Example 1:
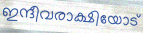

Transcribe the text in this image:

ഇന്ദീവരാക്ഷിയോട്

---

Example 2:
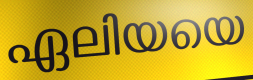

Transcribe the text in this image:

ഏലിയയെ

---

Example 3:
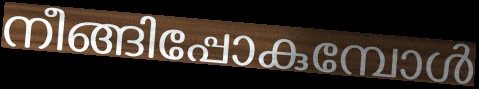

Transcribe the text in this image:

നീങ്ങിപ്പോകുമ്പോൾ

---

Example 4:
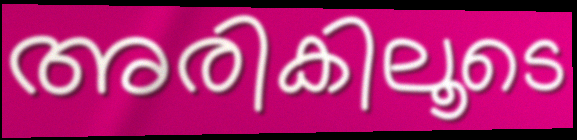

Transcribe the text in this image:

അരികിലൂടെ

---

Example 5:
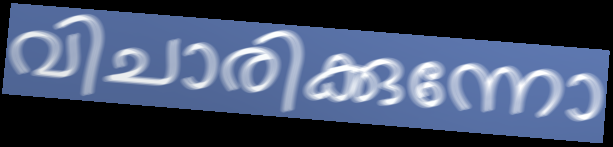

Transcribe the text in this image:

വിചാരിക്കുന്നോ